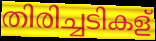
തിരിച്ചടികള്